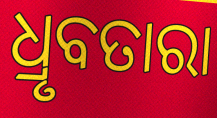
ଧ୍ରୃବତାରା